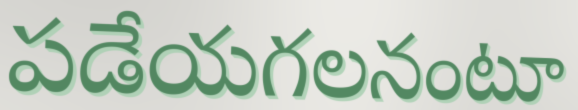
పడేయగలనంటూ